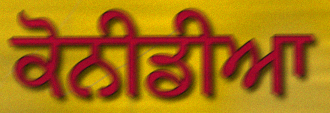
ਕੋਨੀਡੀਆ